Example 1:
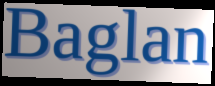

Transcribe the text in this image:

Baglan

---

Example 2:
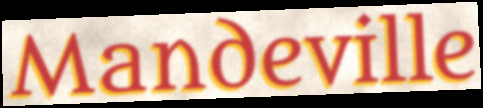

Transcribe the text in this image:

Mandeville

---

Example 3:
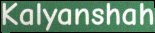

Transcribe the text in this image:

Kalyanshah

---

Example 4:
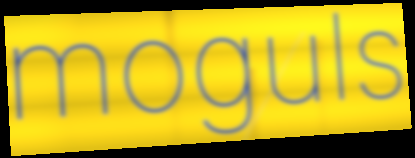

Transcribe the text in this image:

moguls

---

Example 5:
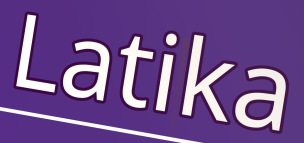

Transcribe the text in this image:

Latika